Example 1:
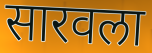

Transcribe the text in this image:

सारवला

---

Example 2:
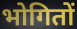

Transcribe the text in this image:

भोगितों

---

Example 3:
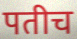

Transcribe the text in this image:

पतीच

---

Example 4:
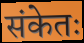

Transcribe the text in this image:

संकेतः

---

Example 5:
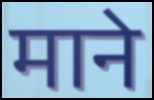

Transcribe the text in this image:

माने